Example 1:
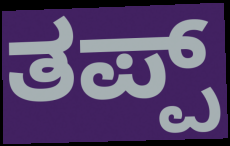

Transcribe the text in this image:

ತಪ್ಪ್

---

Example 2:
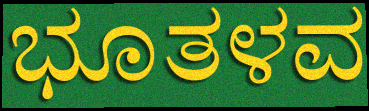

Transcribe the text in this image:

ಭೂತಳವ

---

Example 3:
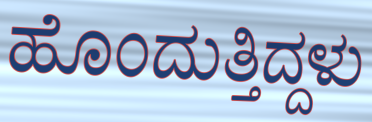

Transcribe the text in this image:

ಹೊಂದುತ್ತಿದ್ದಳು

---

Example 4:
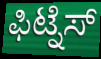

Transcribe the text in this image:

ಫಿಟ್ನೆಸ್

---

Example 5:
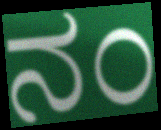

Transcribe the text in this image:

ನಂ